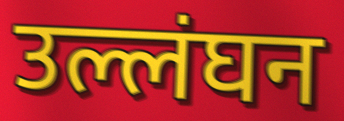
उल्लंघन